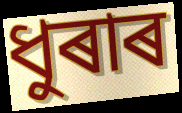
ধুৰাৰ